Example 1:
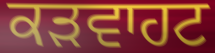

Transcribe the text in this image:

ਕੜਵਾਹਟ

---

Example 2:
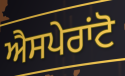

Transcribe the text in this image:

ਐਸਪੇਰਾਂਟੋ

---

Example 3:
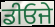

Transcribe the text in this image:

ਡੀਓਜੇ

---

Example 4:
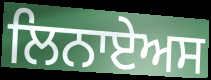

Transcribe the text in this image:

ਲਿਨਾਏਅਸ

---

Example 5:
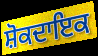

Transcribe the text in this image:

ਸ਼ੋਕਦਾਇਕ